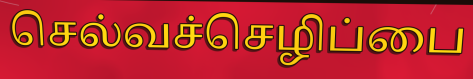
செல்வச்செழிப்பை